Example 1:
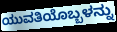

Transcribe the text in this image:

ಯುವತಿಯೊಬ್ಬಳನ್ನು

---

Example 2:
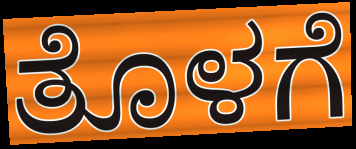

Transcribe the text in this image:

ತೊಳಗೆ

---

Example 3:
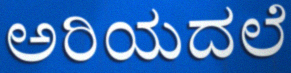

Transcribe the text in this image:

ಅರಿಯದಲೆ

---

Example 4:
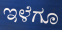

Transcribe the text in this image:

ಇಳೆಗೂ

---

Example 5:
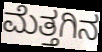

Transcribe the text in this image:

ಮೆತ್ತಗಿನ